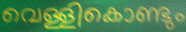
വെള്ളികൊണ്ടും